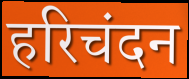
हरिचंदन